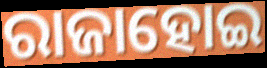
ରାଜାହୋଇ